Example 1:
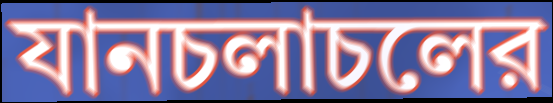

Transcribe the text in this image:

যানচলাচলের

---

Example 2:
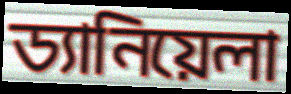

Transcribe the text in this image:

ড্যানিয়েলা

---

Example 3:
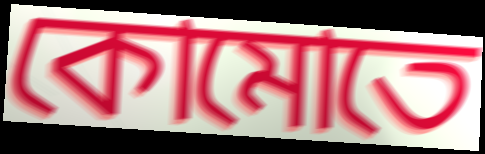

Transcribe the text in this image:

কোমোতে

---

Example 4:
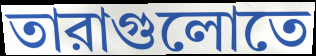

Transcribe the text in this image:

তারাগুলোতে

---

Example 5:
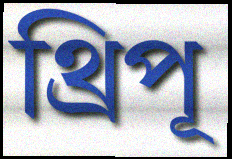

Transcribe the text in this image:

থ্রিপূ